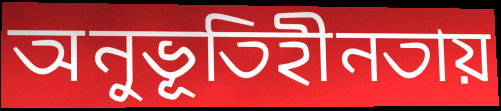
অনুভূতিহীনতায়